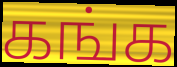
கங்க